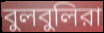
বুলবুলিরা